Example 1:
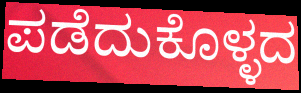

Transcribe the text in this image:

ಪಡೆದುಕೊಳ್ಳದ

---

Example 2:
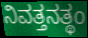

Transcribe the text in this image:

ನಿವತ್ತನತ್ಥಂ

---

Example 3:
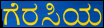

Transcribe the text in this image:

ಗೆರಸಿಯ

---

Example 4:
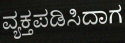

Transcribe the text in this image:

ವ್ಯಕ್ತಪಡಿಸಿದಾಗ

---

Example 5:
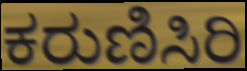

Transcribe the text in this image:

ಕರುಣಿಸಿರಿ